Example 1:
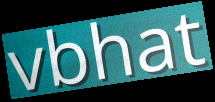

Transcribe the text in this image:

vbhat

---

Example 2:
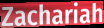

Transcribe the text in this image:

Zachariah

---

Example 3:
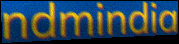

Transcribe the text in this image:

ndmindia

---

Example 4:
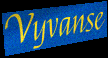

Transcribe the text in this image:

Vyvanse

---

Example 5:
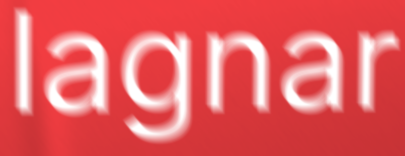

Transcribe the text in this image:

lagnar